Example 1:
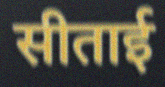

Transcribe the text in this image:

सीताई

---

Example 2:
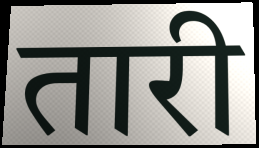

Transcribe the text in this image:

तारी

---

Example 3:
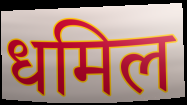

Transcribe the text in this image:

धमिल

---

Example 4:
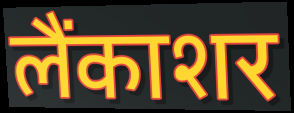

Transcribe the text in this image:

लैंकाशर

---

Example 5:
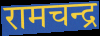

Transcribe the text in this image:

रामचन्‍द्र